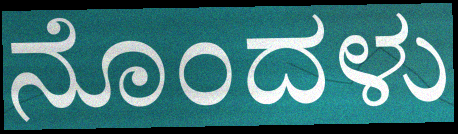
ನೊಂದಳು